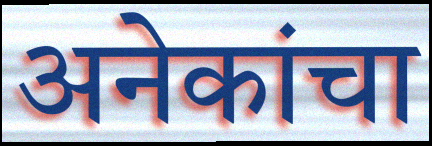
अनेकांचा